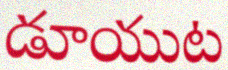
డూయుట